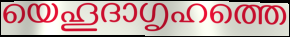
യെഹൂദാഗൃഹത്തെ